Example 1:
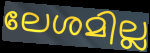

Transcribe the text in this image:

ലേശമില്ല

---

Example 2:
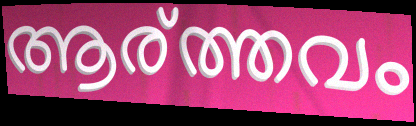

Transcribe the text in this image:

ആര്ത്തവം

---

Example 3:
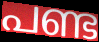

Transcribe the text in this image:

പണ്ട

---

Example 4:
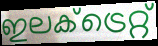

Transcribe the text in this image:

ഇലക്ട്രെറ്റ്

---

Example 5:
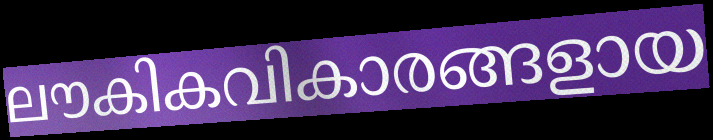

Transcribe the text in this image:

ലൗകികവികാരങ്ങളായ